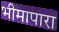
भीमापारा